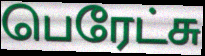
பெரேட்சு